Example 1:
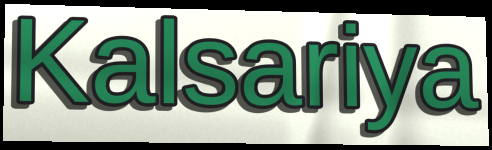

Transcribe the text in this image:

Kalsariya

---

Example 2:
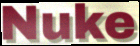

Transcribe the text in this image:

Nuke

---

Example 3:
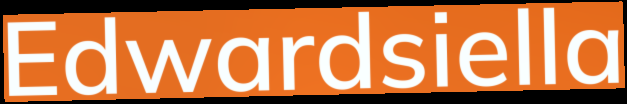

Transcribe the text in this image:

Edwardsiella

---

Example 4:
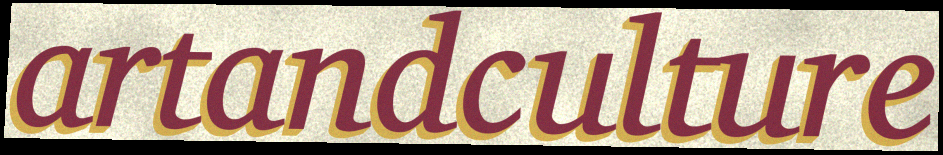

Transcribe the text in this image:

artandculture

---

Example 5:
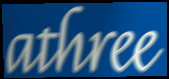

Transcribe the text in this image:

athree